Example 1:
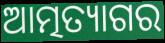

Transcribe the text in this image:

ଆତ୍ମତ୍ୟାଗର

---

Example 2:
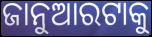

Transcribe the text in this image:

ଜାନୁଆରଟାକୁ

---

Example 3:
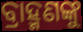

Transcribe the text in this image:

ବ୍ରାହ୍ମଣଙ୍କୁ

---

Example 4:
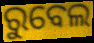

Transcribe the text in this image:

ରୁବେଲ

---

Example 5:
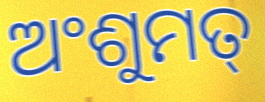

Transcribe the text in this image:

ଅଂଶୁମତ୍